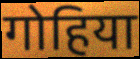
गोहिया